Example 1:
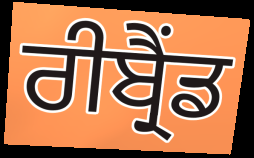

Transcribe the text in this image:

ਰੀਬ੍ਰੈਂਡ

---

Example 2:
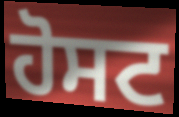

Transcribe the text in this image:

ਹੋਸਟ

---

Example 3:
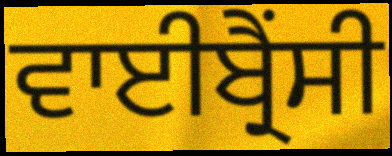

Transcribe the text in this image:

ਵਾਈਬ੍ਰੈਂਸੀ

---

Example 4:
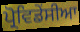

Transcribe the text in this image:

ਪ੍ਰੋਵਿਡੇਂਸੀਆ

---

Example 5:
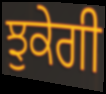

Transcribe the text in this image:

ਝੁਕੇਗੀ